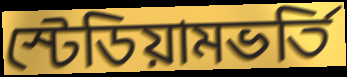
স্টেডিয়ামভর্তি